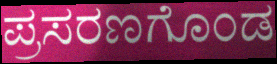
ಪ್ರಸರಣಗೊಂಡ